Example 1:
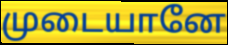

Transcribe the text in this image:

முடையானே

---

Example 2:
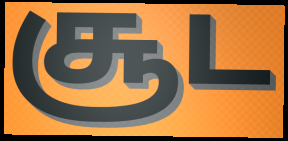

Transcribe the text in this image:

சூட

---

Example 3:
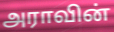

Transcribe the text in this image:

அராவின்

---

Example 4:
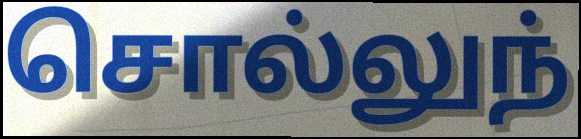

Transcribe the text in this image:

சொல்லுந்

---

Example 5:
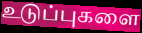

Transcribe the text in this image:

உடுப்புகளை